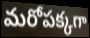
మరోపక్కగా